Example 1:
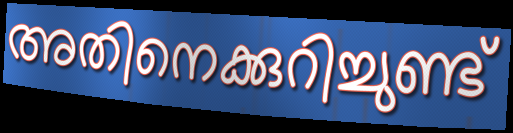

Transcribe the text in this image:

അതിനെക്കുറിച്ചുണ്ട്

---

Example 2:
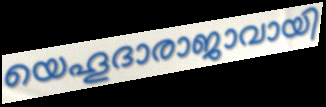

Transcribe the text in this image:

യെഹൂദാരാജാവായി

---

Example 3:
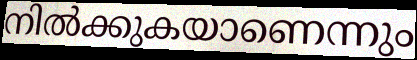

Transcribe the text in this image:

നിൽക്കുകയാണെന്നും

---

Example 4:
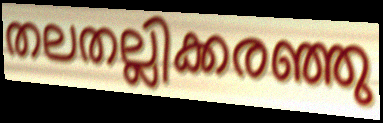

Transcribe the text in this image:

തലതല്ലിക്കരഞ്ഞു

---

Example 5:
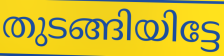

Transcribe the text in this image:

തുടങ്ങിയിട്ടേ